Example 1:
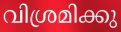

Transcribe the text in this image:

വിശ്രമിക്കു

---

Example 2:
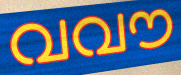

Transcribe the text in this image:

വവൗ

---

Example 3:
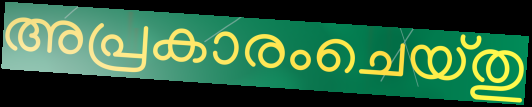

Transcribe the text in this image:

അപ്രകാരംചെയ്തു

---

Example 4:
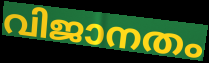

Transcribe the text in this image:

വിജാനതം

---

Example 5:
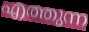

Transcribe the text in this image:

എത്തുന്ന